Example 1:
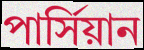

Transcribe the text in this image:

পার্সিয়ান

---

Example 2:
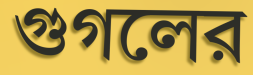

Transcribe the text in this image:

গুগলের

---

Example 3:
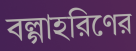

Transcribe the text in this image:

বল্গাহরিণের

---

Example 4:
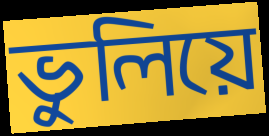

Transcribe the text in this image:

ভুলিয়ে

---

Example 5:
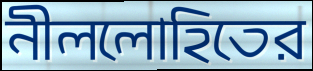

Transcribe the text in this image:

নীললোহিতের